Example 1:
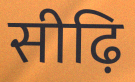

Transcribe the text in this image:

सीढ़ि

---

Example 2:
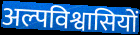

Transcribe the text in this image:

अल्पविश्वासियों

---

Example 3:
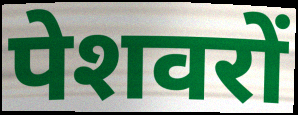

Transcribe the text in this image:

पेशवरों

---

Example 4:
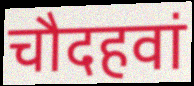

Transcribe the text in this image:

चौदहवां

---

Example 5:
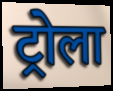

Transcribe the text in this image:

ट्रोला